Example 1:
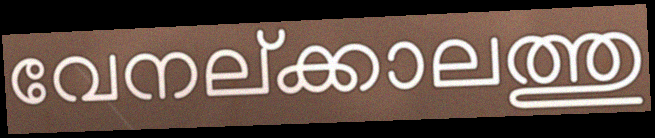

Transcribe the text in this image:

വേനല്ക്കാലത്തു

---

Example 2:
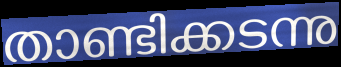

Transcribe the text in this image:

താണ്ടിക്കടന്നു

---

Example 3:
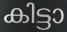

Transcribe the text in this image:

കിട്ടാ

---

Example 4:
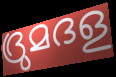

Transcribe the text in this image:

ദ്രുമദള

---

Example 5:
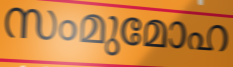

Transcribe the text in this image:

സംമുമോഹ